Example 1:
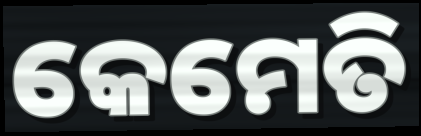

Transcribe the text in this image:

କେମେତି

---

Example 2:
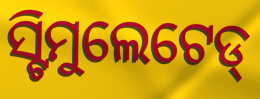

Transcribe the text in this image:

ସ୍ଟିମୁଲେଟେଡ୍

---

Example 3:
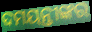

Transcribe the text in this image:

ଦମୟନ୍ତୀଙ୍କର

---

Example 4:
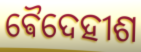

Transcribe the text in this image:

ଵୈଦେହୀଶ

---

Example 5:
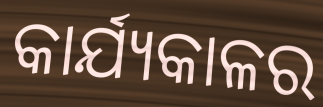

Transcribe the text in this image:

କାର୍ଯ୍ୟକାଳର